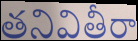
తనివితీరా